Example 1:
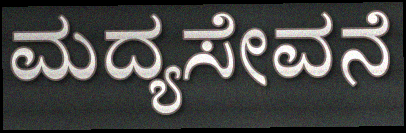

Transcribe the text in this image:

ಮದ್ಯಸೇವನೆ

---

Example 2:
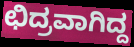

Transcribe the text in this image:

ಛಿದ್ರವಾಗಿದ್ದ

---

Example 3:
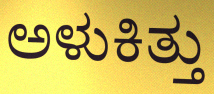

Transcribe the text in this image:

ಅಳುಕಿತ್ತು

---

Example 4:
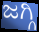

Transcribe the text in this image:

ಜಗ್ಗಿ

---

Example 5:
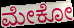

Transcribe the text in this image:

ಮೇಕೋ